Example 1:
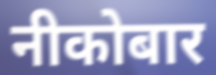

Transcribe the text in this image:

नीकोबार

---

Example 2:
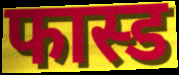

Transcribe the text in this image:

फास्ड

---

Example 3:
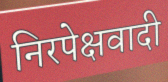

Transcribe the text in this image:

निरपेक्षवादी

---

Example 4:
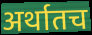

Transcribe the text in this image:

अर्थातच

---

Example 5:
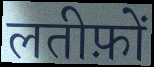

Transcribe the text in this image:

लतीफ़ों